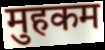
मुहकम